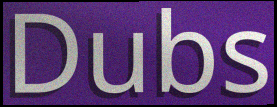
Dubs